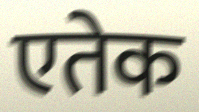
एतेक